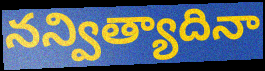
నన్విత్యాదినా